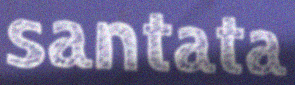
santata